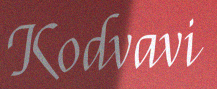
Kodvavi